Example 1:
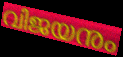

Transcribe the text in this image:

വിജയനും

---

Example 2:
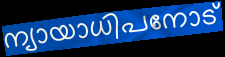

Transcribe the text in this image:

ന്യായാധിപനോട്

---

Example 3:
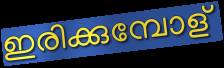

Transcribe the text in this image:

ഇരിക്കുമ്പോള്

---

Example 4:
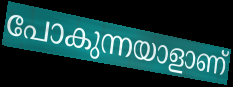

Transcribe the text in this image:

പോകുന്നയാളാണ്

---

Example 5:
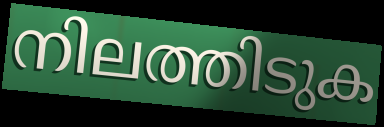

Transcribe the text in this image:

നിലത്തിടുക